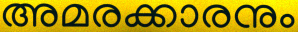
അമരക്കാരനും